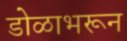
डोळाभरून